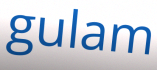
gulam